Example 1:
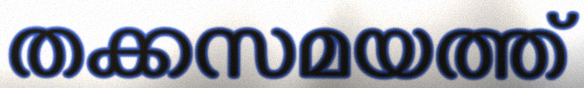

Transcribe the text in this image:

തക്കസമയത്ത്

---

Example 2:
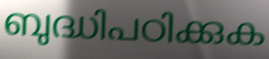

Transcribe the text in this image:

ബുദ്ധിപഠിക്കുക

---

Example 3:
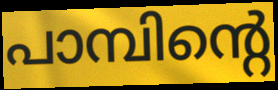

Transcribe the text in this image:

പാമ്പിന്റെ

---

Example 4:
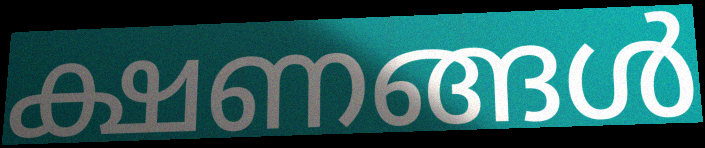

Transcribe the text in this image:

ക്ഷണങ്ങൾ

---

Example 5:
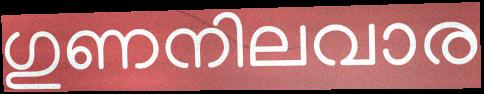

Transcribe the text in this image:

ഗുണനിലവാര